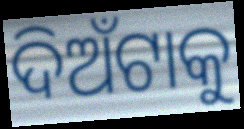
ଦିଅଁଟାକୁ